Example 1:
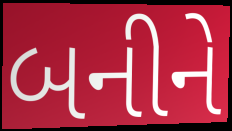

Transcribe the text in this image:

બનીને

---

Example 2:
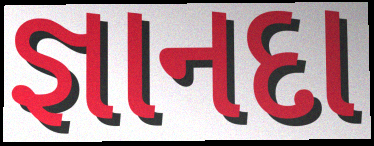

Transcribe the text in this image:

જ્ઞાનદા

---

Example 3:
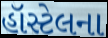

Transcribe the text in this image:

હૉસ્ટેલના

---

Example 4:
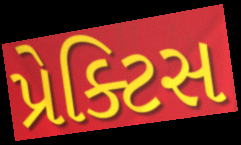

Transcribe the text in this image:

પ્રેક્ટિસ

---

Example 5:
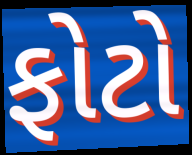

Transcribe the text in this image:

ફોટો